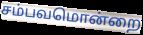
சம்பவமொன்றை